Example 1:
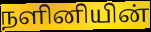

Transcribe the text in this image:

நளினியின்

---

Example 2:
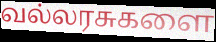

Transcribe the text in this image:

வல்லரசுகளை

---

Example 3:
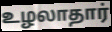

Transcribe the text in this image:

உழலாதார்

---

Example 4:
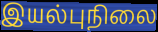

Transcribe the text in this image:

இயல்புநிலை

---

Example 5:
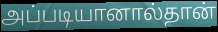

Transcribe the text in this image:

அப்படியானால்தான்